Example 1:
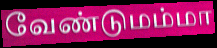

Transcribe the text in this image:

வேண்டுமம்மா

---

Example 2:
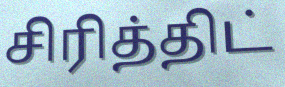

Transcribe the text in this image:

சிரித்திட்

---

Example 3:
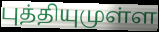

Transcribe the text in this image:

புத்தியுமுள்ள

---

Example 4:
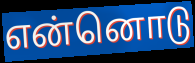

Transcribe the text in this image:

என்னொடு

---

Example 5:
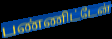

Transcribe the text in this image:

பண்ணிட்டேன்